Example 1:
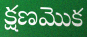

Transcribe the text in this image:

క్షణమొక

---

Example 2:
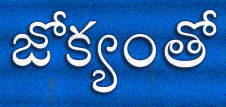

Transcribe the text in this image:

జోక్యంతో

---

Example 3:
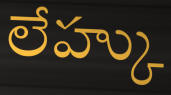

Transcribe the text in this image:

లేహ్కు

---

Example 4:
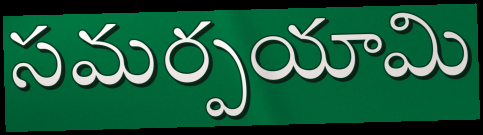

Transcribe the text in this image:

సమర్పయామి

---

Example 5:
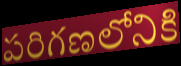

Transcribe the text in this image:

పరిగణలోనికి